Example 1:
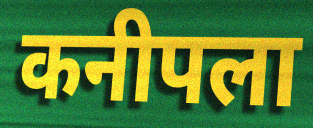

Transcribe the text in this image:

कनीपला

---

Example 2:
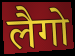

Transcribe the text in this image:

लैगो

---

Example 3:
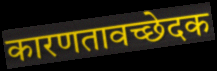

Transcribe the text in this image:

कारणतावच्छेदक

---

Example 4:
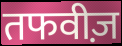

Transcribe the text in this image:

तफवीज़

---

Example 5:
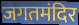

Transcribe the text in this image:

जगतमंदिर